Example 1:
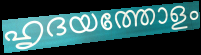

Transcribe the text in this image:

ഹൃദയത്തോളം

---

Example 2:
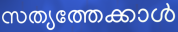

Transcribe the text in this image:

സത്യത്തേക്കാൾ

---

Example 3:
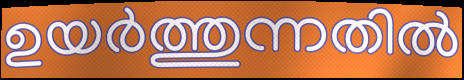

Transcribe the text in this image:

ഉയർത്തുന്നതിൽ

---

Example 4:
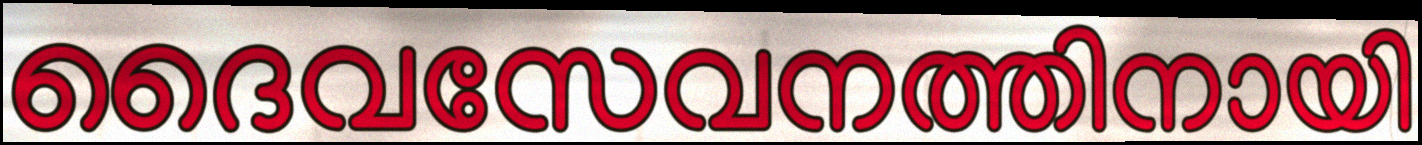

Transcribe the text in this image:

ദൈവസേവനത്തിനായി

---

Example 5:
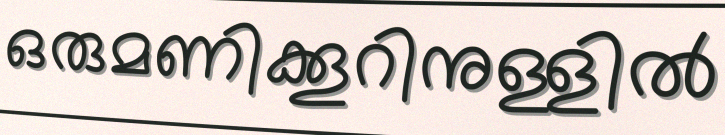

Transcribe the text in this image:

ഒരുമണിക്കൂറിനുള്ളിൽ